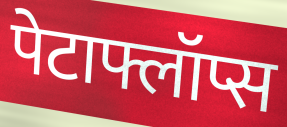
पेटाफ्लॉप्स